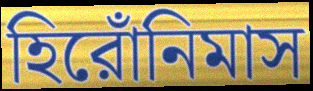
হিরোঁনিমাস